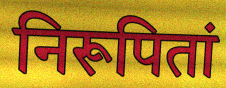
निरूपितां